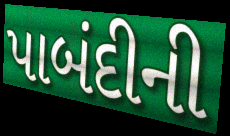
પાબંદીની